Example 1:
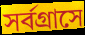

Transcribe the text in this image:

সর্বগ্রাসে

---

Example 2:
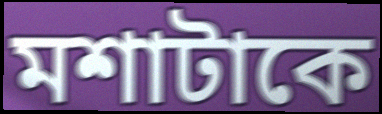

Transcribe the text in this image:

মশাটাকে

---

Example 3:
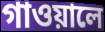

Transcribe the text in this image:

গাওয়ালে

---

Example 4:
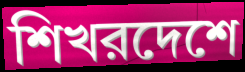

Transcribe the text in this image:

শিখরদেশে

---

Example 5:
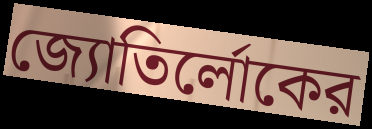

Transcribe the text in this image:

জ্যোতির্লোকের